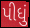
પીધું